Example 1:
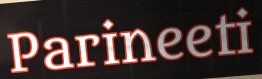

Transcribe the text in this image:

Parineeti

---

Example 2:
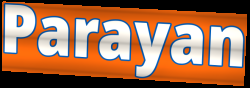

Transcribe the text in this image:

Parayan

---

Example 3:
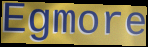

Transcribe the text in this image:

Egmore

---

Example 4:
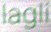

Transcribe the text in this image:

lagli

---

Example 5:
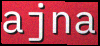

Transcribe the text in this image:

ajna